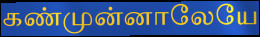
கண்முன்னாலேயே